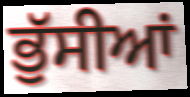
ਭੁੱਸੀਆਂ